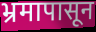
भ्रमापासून